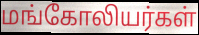
மங்கோலியர்கள்